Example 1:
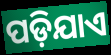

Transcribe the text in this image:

ପଡ଼ିଯାଏ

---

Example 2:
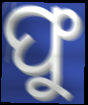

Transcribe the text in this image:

ଫୁ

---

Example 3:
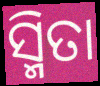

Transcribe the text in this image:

ସ୍ମିତା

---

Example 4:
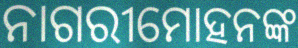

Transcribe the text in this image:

ନାଗରୀମୋହନଙ୍କ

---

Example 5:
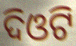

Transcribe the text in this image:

ଦିଓଟି